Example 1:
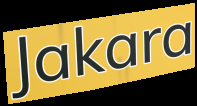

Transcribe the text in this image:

Jakara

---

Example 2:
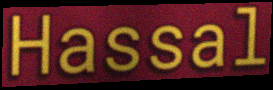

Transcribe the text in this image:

Hassal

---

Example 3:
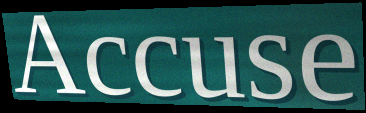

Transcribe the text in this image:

Accuse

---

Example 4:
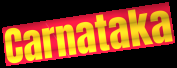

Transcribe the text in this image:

Carnataka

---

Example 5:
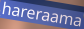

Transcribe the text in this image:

hareraama